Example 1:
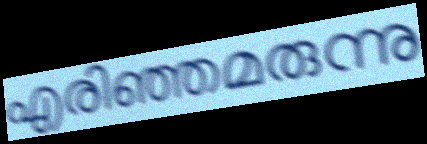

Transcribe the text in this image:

എരിഞ്ഞമരുന്നു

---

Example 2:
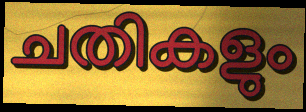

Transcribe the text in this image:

ചതികളും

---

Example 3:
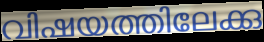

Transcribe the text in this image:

വിഷയത്തിലേക്കു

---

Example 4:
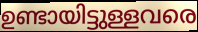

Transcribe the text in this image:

ഉണ്ടായിട്ടുള്ളവരെ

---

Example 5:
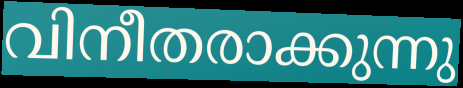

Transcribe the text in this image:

വിനീതരാക്കുന്നു